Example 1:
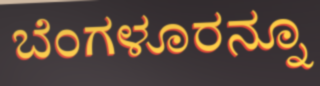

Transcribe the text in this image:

ಬೆಂಗಳೂರನ್ನೂ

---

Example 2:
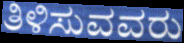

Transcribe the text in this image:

ತಿಳಿಸುವವರು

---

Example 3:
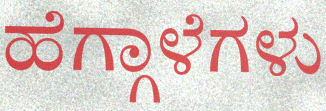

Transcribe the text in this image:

ಹೆಗ್ಗಾಳೆಗಳು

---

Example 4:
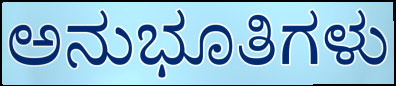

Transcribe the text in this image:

ಅನುಭೂತಿಗಳು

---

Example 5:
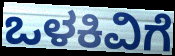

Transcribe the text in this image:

ಒಳಕಿವಿಗೆ